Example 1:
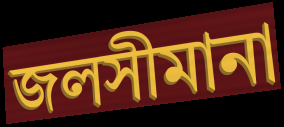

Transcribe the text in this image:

জলসীমানা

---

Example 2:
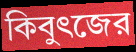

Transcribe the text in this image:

কিবুৎজের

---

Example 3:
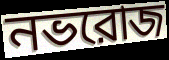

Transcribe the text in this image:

নভরোজ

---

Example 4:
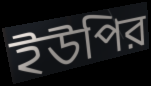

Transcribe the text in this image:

ইউপির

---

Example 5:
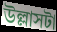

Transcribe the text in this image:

উল্লাসটা